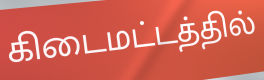
கிடைமட்டத்தில்